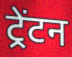
ट्रेंटन